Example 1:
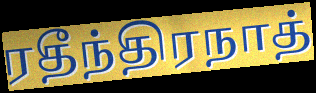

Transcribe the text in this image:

ரதீந்திரநாத்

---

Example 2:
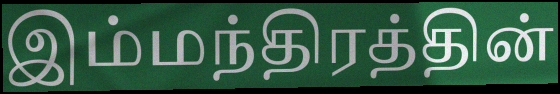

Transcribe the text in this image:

இம்மந்திரத்தின்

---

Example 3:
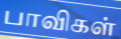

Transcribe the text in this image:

பாவிகள்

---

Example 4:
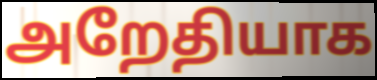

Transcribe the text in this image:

அறேதியாக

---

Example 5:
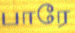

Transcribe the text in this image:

பாரே